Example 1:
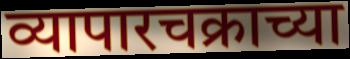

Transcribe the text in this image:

व्यापारचक्राच्या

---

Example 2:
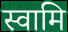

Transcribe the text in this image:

स्वामि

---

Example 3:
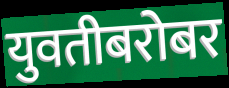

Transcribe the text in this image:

युवतीबरोबर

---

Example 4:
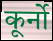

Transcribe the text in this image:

कूर्नो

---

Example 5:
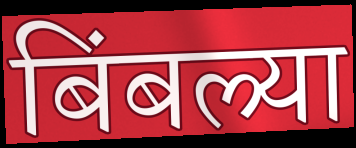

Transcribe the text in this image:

बिंबल्या